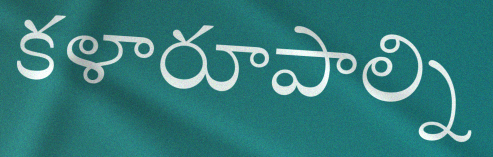
కళారూపాల్ని